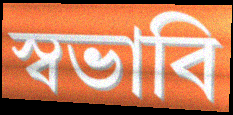
স্বভাবি